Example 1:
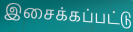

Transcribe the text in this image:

இசைக்கப்பட்டு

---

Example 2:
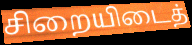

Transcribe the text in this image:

சிறையிடைத்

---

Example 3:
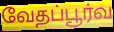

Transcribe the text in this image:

வேதப்பூர்வ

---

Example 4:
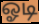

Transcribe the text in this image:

ஓடி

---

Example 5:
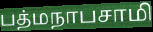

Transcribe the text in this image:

பத்மநாபசாமி